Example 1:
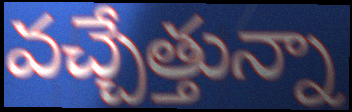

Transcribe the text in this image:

వచ్చేత్తున్నా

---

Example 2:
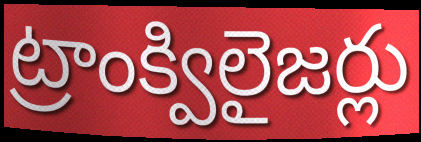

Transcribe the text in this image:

ట్రాంక్విలైజర్లు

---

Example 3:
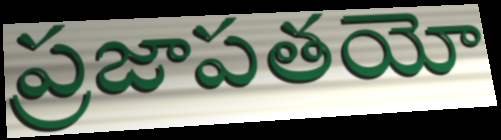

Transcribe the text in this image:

ప్రజాపతయో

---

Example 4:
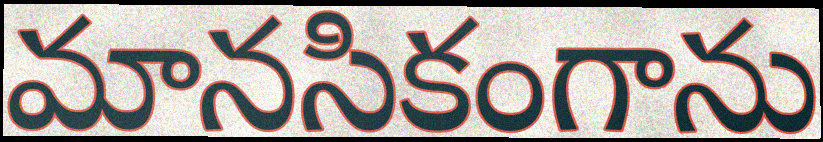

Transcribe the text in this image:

మానసికంగాను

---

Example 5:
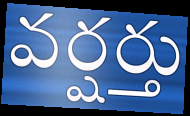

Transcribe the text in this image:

వర్షర్తు